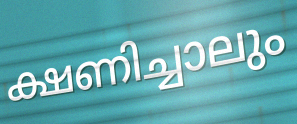
ക്ഷണിച്ചാലും